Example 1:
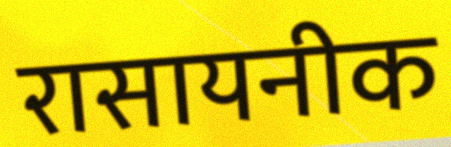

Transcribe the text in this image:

रासायनीक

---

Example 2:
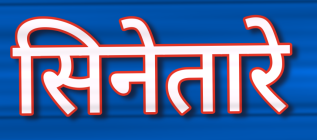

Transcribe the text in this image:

सिनेतारे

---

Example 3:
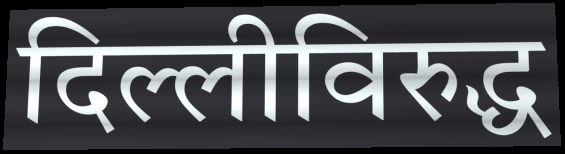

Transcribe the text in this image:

दिल्लीविरुद्ध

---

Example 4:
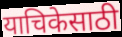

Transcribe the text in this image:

याचिकेसाठी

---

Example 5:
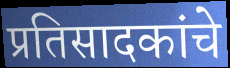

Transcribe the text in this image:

प्रतिसादकांचे